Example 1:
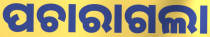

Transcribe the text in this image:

ପଚାରାଗଲା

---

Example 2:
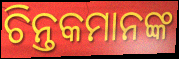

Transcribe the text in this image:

ଚିନ୍ତକମାନଙ୍କ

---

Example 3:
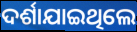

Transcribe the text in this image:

ଦର୍ଶାଯାଇଥିଲେ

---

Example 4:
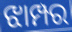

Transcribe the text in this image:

ଝାମ୍ପର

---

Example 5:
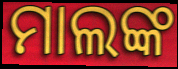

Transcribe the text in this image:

ମାଲଙ୍କ